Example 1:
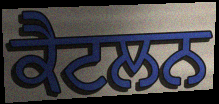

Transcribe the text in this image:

ਕੈਟਲਨ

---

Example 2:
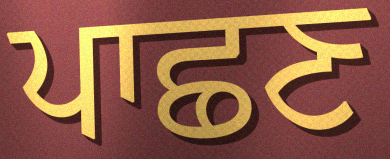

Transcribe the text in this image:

ਪਾਛਣ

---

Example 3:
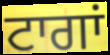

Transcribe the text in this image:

ਟਾਗਾਂ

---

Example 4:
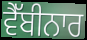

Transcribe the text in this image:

ਵੈੱਬੀਨਾਰ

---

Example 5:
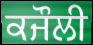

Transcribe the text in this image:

ਕਜੌਲੀ